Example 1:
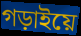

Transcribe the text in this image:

গড়াইয়ে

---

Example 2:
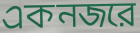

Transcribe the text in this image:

একনজরে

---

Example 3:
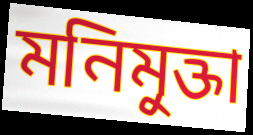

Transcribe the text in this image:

মনিমুক্তা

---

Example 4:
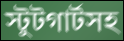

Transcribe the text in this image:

স্টুটগার্টসহ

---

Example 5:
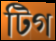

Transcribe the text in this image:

টিগ